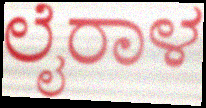
ಲೈರಾಳ